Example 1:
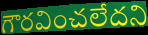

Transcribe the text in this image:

గౌరవించలేదని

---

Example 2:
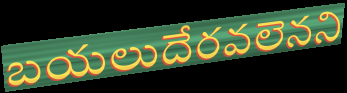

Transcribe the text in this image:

బయలుదేరవలెనని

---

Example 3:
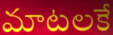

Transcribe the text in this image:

మాటలకే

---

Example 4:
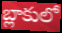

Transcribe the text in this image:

బ్లాకులో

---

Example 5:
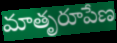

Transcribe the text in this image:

మాతృరూపేణ